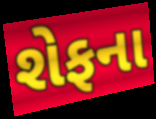
શેફના